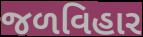
જળવિહાર